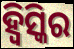
ହ୍ୱିସ୍କିର